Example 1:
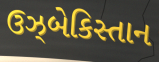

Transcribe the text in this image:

ઉઝ્બેકિસ્તાન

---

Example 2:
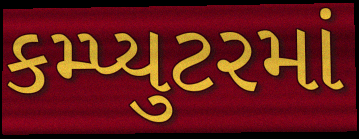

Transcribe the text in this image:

કમ્પ્યુટરમાં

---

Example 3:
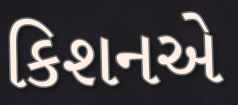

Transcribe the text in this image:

કિશનએ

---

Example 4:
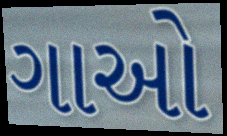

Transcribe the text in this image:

ગાઓ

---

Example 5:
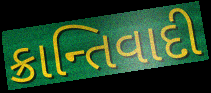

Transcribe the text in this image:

ક્રાન્તિવાદી